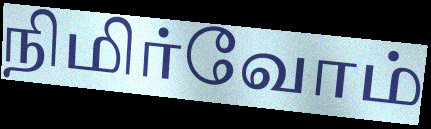
நிமிர்வோம்